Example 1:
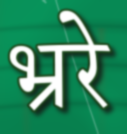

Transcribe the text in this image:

भ्ररे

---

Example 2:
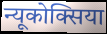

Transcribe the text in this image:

न्यूकोक्सिया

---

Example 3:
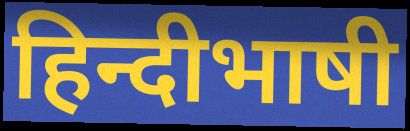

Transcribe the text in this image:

हिन्दीभाषी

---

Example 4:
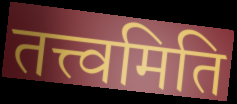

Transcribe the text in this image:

तत्त्वमिति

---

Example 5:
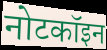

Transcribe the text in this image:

नोटकॉइन